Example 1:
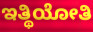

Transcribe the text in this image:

ಇತ್ಥಿಯೋತಿ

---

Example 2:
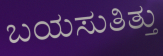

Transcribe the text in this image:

ಬಯಸುತಿತ್ತು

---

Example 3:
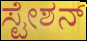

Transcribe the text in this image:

ಸ್ಟೇಶನ್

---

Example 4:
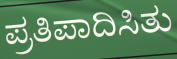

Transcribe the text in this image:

ಪ್ರತಿಪಾದಿಸಿತು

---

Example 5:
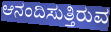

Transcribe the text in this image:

ಆನಂದಿಸುತ್ತಿರುವ